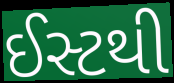
ઈસ્ટથી